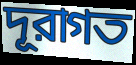
দূরাগত